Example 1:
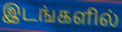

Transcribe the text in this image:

இடங்களில்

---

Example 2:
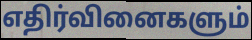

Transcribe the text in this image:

எதிர்வினைகளும்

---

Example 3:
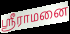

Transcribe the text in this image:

ஸ்ரீராமனை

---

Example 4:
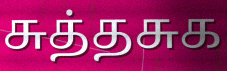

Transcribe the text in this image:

சுத்தசுக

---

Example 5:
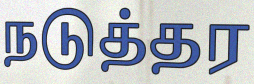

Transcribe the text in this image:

நடுத்தர